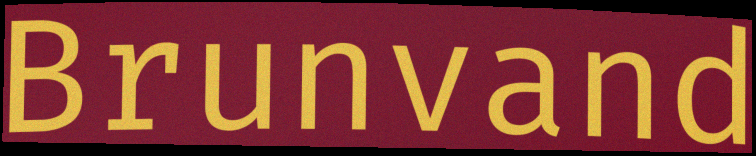
Brunvand